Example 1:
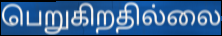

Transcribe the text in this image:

பெறுகிறதில்லை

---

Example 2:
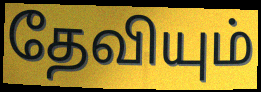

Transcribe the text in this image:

தேவியும்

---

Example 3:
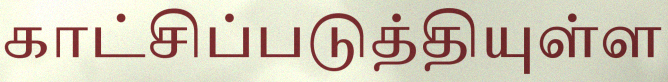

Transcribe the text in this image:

காட்சிப்படுத்தியுள்ள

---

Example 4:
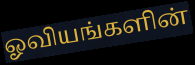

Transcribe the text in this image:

ஓவியங்களின்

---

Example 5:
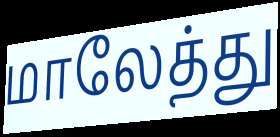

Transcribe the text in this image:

மாலேத்து